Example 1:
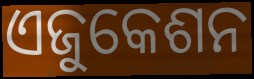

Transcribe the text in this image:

ଏଜୁକେଶନ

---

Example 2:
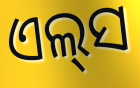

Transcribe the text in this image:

ଏଲ୍‌ସ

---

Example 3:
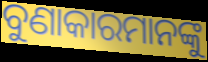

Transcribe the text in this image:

ବୁଣାକାରମାନଙ୍କୁ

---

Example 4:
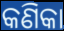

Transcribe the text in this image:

କଣିକା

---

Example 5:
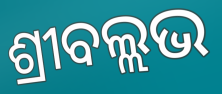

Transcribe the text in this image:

ଶ୍ରୀବଲ୍ଲଭ